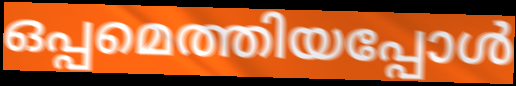
ഒപ്പമെത്തിയപ്പോൾ